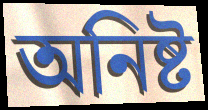
অনিষ্ট